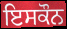
ਇਸਕੌਨ